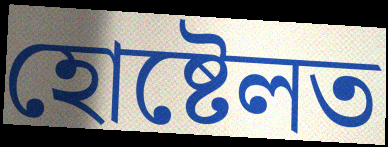
হোষ্টেলত